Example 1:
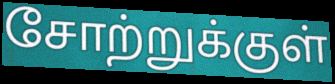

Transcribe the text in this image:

சோற்றுக்குள்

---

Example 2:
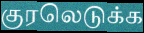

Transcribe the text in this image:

குரலெடுக்க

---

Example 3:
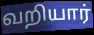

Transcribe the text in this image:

வறியார்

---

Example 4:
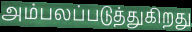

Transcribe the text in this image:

அம்பலப்படுத்துகிறது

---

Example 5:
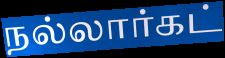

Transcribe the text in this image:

நல்லார்கட்